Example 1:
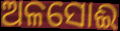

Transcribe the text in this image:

ଅଳସୋଈ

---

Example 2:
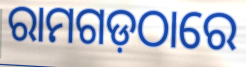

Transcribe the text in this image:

ରାମଗଡ଼ଠାରେ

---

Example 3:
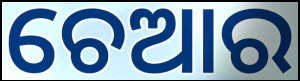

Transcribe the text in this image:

ଚେଆର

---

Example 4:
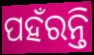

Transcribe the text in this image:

ପହଁରନ୍ତି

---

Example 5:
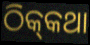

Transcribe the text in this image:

ଠିକ୍‌କଥା